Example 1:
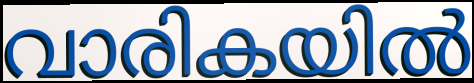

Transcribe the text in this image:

വാരികയിൽ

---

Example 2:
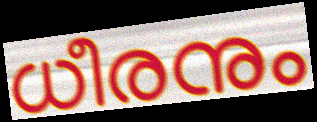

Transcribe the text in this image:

ധീരനും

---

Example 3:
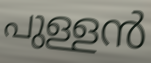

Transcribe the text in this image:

പുള്ളൻ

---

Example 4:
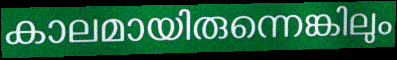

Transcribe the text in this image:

കാലമായിരുന്നെങ്കിലും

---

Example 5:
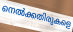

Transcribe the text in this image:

നെൽക്കതിരുകളെ